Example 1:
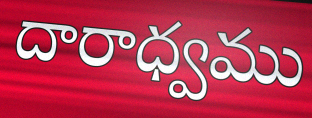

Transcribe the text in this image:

దారాధ్వము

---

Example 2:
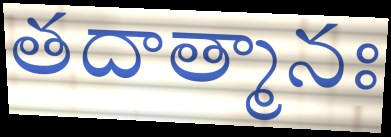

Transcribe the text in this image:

తదాత్మానః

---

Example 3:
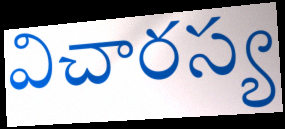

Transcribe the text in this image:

విచారస్య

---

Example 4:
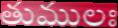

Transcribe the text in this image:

తుములః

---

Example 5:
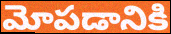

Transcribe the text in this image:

మోపడానికి